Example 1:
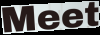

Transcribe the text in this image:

Meet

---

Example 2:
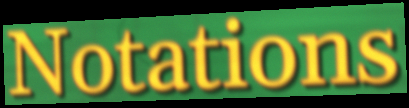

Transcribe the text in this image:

Notations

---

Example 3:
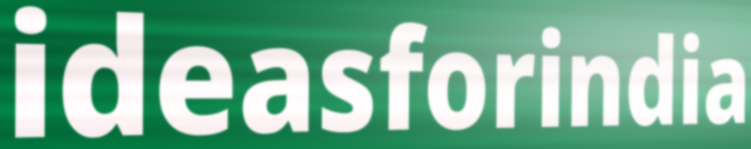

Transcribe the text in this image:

ideasforindia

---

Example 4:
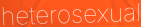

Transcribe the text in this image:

heterosexual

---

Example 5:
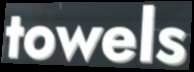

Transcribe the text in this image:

towels